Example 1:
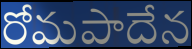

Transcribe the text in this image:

రోమపాదేన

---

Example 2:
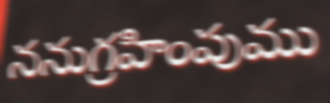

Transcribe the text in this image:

ననుగ్రహింపుము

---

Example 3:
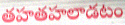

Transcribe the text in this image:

తహతహలాడటం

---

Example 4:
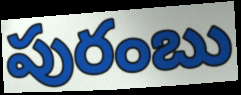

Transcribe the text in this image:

పురంబు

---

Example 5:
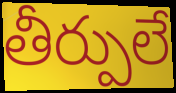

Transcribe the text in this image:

తీర్పులే